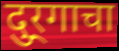
दुर्गाचा